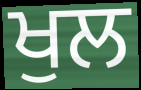
ਖੁਲ